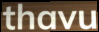
thavu